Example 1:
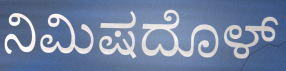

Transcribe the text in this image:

ನಿಮಿಷದೊಳ್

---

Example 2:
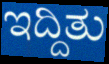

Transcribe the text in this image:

ಇದ್ದಿತು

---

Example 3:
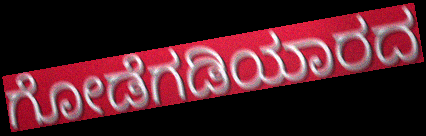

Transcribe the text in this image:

ಗೋಡೆಗಡಿಯಾರದ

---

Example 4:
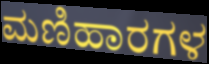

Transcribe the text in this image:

ಮಣಿಹಾರಗಳ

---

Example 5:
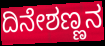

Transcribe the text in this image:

ದಿನೇಶಣ್ಣನ